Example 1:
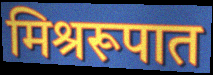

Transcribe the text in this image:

मिश्ररूपात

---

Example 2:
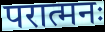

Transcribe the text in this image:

परात्मनः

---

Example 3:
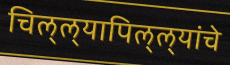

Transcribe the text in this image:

चिल्ल्यापिल्ल्यांचे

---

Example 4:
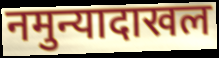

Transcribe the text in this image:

नमुन्यादाखल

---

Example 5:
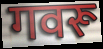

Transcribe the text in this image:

गवरू